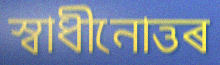
স্বাধীনোত্তৰ